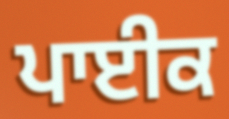
ਪਾਈਕ